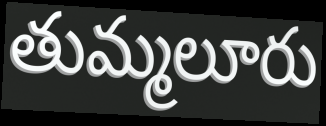
తుమ్మలూరు